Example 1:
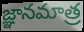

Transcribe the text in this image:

జ్ఞానమాత్ర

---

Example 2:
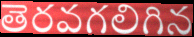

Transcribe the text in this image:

తెరవగలిగిన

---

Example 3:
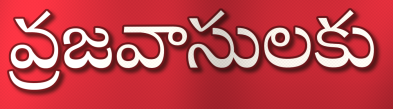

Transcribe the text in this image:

వ్రజవాసులకు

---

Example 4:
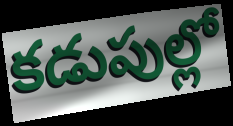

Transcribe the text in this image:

కడుపుల్లో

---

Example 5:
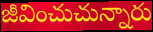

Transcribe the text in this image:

జీవించుచున్నారు